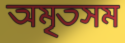
অমৃতসম